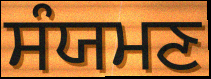
ਸੰਯਮਣ